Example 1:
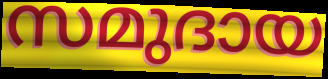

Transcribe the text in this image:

സമുദായ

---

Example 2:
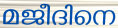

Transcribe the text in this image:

മജീദിനെ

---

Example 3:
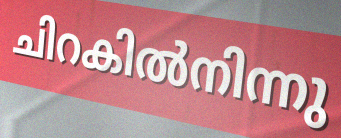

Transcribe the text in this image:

ചിറകിൽനിന്നു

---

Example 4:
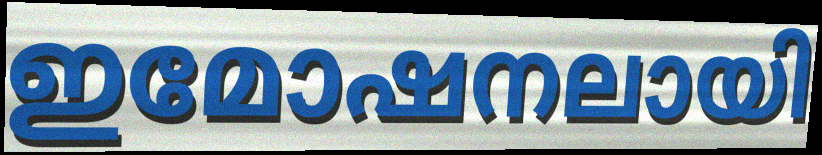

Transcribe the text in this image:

ഇമോഷനലായി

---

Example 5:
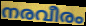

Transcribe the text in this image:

നരവീരം